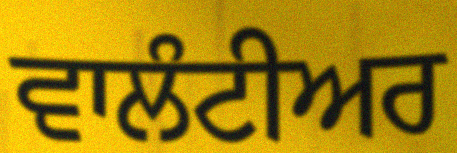
ਵਾਲੰਟੀਅਰ